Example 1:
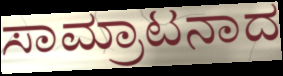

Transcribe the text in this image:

ಸಾಮ್ರಾಟನಾದ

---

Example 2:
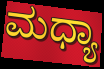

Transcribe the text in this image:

ಮಧ್ಯಾ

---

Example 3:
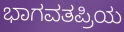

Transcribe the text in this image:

ಭಾಗವತಪ್ರಿಯ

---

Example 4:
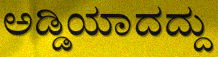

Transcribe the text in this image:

ಅಡ್ಡಿಯಾದದ್ದು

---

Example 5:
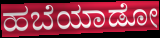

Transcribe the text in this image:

ಹಬೆಯಾಡೋ